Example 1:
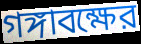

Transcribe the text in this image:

গঙ্গাবক্ষের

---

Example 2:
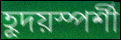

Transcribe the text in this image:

হূদয়স্পর্শী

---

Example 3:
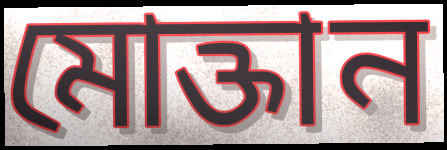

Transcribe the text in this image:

মোক্তান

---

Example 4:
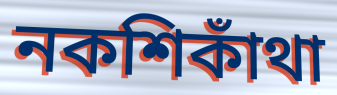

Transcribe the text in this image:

নকশিকাঁথা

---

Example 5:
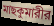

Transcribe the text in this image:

মাছকুমারীর